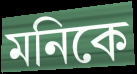
মনিকে